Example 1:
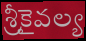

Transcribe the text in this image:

శ్రీకైవల్య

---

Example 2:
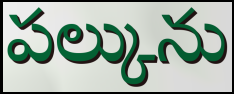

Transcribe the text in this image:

పల్కును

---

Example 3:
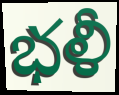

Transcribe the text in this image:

భళీ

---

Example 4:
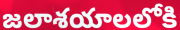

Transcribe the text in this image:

జలాశయాలలోకి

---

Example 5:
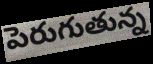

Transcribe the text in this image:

పెరుగుతున్న